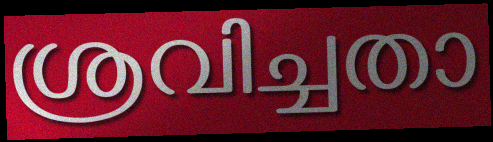
ശ്രവിച്ചതാ